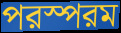
পরস্পরম